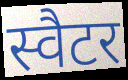
स्वैटर